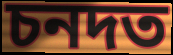
চনদত